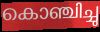
കൊഞ്ചിച്ചു